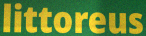
littoreus